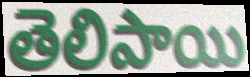
తెలిపాయి